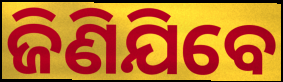
ଜିଣିଯିବେ